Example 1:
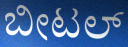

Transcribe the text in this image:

ಬೀಟಲ್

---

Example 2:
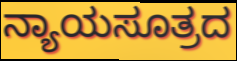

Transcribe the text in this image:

ನ್ಯಾಯಸೂತ್ರದ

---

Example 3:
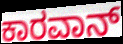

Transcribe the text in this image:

ಕಾರವಾನ್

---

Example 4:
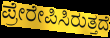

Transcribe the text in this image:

ಪ್ರೇರೇಪಿಸಿರುತ್ತದೆ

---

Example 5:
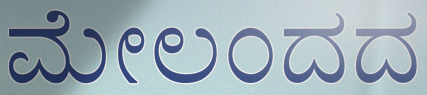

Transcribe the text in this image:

ಮೇಲಂದದ